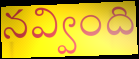
నవ్వింది